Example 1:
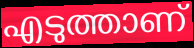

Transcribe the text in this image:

എടുത്താണ്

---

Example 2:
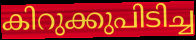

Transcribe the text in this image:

കിറുക്കുപിടിച്ച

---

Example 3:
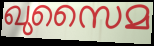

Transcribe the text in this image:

ഖുസൈമ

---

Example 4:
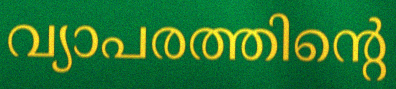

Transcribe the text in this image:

വ്യാപരത്തിന്റെ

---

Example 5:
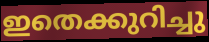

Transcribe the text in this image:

ഇതെക്കുറിച്ചു